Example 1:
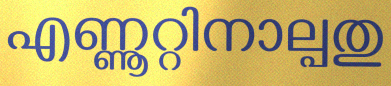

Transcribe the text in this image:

എണ്ണൂറ്റിനാല്പതു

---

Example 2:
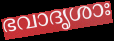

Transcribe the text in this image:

ഭവാദൃശാഃ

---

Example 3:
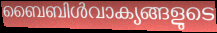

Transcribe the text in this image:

ബൈബിൾവാക്യങ്ങളുടെ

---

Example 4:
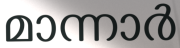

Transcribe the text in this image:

മാന്നാർ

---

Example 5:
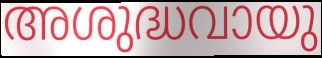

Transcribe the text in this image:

അശുദ്ധവായു